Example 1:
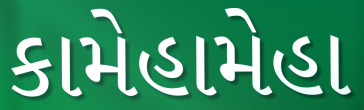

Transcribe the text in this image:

કામેહામેહા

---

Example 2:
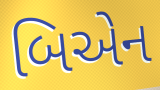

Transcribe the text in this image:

બિએન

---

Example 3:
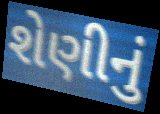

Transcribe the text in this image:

શેણીનું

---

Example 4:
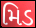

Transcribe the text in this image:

મિડ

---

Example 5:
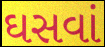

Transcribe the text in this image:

ઘસવાં